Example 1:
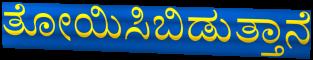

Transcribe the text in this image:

ತೋಯಿಸಿಬಿಡುತ್ತಾನೆ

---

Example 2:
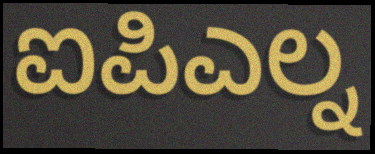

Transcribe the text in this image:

ಐಪಿಎಲ್ನ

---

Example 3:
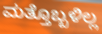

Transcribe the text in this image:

ಮತ್ತೊಬ್ಬಳಿಲ್ಲ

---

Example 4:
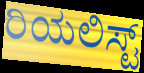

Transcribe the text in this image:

ರಿಯಲಿಸ್ಟ್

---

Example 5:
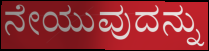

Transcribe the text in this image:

ನೇಯುವುದನ್ನು